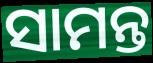
ସାମନ୍ତ